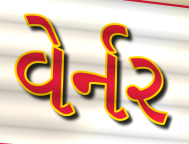
વેર્નર